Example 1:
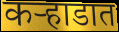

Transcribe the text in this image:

कऱ्हाडात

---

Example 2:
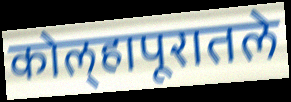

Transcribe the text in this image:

कोल्हापूरातले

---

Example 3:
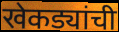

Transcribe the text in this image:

खेकड्यांची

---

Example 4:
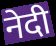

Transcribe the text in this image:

नेदी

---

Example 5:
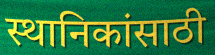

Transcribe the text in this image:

स्थानिकांसाठी